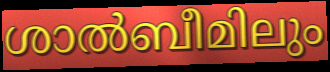
ശാൽബീമിലും